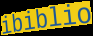
ibiblio